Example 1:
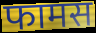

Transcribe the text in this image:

फामस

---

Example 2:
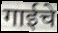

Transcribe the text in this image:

गाईचे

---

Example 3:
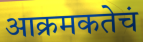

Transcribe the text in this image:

आक्रमकतेचं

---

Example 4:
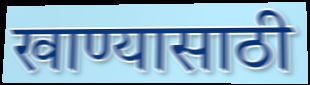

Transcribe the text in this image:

खाण्यासाठी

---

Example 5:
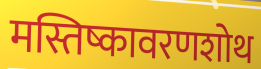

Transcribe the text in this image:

मस्तिष्कावरणशोथ